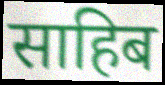
साहिब